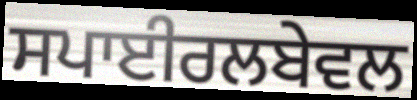
ਸਪਾਈਰਲਬੇਵਲ